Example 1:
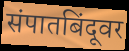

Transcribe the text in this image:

संपातबिंदूवर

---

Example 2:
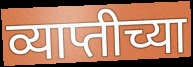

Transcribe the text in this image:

व्याप्तीच्या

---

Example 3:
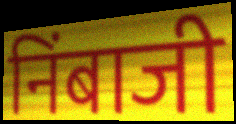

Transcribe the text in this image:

निंबाजी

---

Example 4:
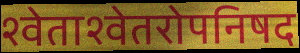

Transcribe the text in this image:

श्वेताश्वेतरोपनिषद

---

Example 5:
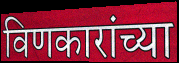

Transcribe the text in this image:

विणकारांच्या